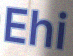
Ehi